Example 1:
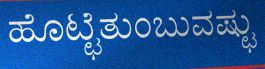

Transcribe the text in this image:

ಹೊಟ್ಟೆತುಂಬುವಷ್ಟು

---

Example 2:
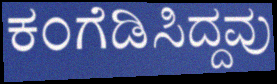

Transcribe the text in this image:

ಕಂಗೆಡಿಸಿದ್ದವು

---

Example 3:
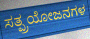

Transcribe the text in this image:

ಸತ್ಪ್ರಯೋಜನಗಳ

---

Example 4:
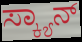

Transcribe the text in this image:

ಸ್ಕ್ಯಾನ್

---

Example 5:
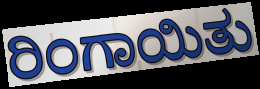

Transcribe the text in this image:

ರಿಂಗಾಯಿತು